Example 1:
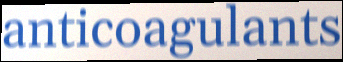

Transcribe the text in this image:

anticoagulants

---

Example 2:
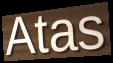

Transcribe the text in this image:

Atas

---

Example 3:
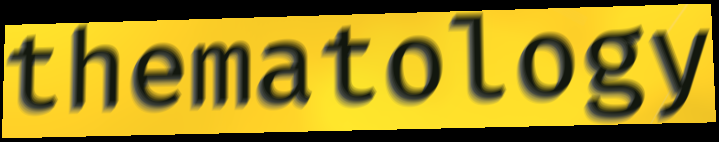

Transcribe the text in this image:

thematology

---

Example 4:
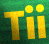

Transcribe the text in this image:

Tii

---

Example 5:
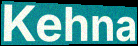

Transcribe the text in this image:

Kehna